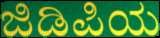
ಜಿಡಿಪಿಯ